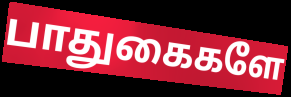
பாதுகைகளே